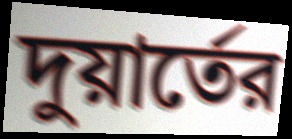
দুয়ার্তের